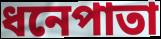
ধনেপাতা